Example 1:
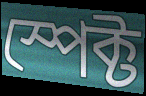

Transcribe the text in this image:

স্পেক্ট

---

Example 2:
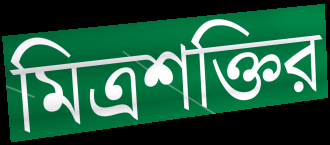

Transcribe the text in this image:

মিত্রশক্তির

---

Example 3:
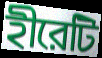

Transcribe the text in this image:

হীরেটি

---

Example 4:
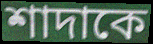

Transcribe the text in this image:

শাদাকে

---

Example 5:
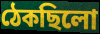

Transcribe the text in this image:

ঠেকছিলো